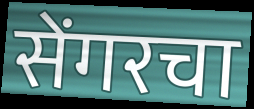
सेंगरचा